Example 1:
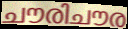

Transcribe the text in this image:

ചൗരിചൗര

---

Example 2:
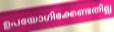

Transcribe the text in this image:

ഉപയോഗിക്കേണ്ടതില്ല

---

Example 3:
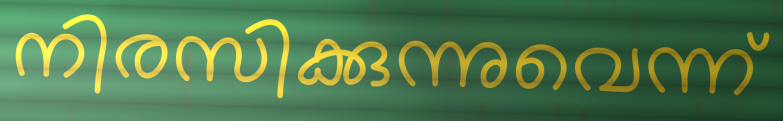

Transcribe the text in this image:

നിരസിക്കുന്നുവെന്ന്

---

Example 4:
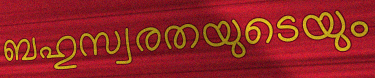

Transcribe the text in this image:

ബഹുസ്വരതയുടെയും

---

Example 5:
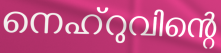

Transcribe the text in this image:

നെഹ്റുവിന്റെ